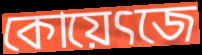
কোয়েৎজে